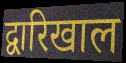
द्वारिखाल